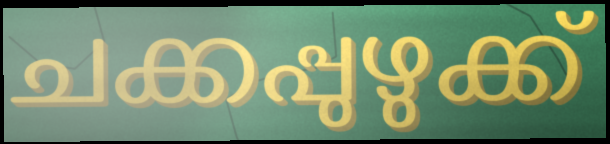
ചക്കപ്പുഴുക്ക്